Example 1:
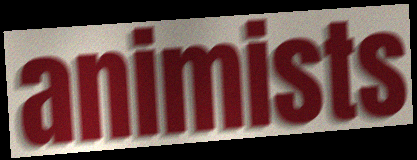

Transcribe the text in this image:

animists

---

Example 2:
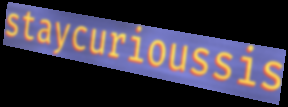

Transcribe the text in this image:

staycurioussis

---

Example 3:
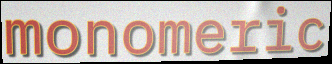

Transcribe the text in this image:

monomeric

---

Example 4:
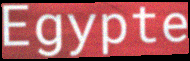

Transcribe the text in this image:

Egypte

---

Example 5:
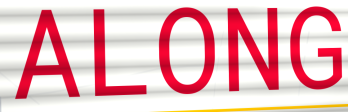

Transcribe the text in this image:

ALONG